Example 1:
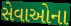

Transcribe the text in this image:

સેવાઓના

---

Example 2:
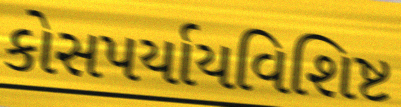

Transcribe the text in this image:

કોસપર્યાયવિશિષ્ટ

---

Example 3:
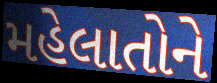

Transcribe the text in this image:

મહેલાતોને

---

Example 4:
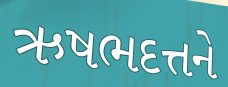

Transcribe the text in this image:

ઋષભદત્તને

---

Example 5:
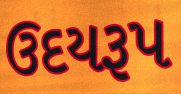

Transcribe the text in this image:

ઉદયરૂપ